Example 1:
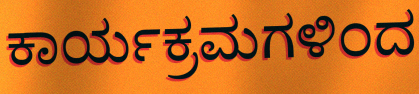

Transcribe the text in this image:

ಕಾರ್ಯಕ್ರಮಗಳಿಂದ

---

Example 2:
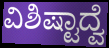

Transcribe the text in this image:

ವಿಶಿಷ್ಟಾದ್ವೆ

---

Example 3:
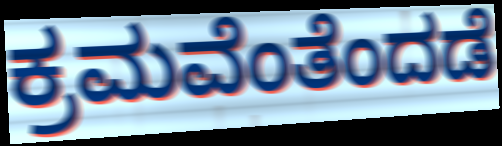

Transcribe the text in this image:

ಕ್ರಮವೆಂತೆಂದಡೆ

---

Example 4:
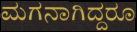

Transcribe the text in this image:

ಮಗನಾಗಿದ್ದರೂ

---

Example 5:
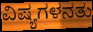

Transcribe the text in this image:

ವಿಷ್ಯಗಳನತು